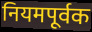
नियमपूर्वक